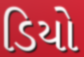
ડિયો